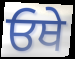
ਓਥੇ